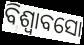
ବିଶ୍ୱାବସୋ